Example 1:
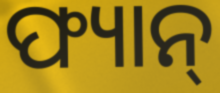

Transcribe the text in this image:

ଫ୍ୟାନ୍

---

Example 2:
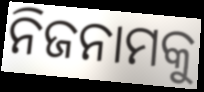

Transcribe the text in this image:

ନିଜନାମକୁ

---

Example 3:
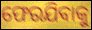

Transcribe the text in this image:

ଫେରଯିବାକୁ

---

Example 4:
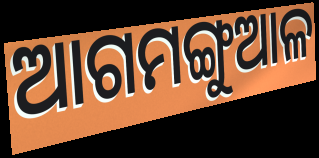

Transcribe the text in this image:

ଆଗମଙ୍ଗୁଆଳ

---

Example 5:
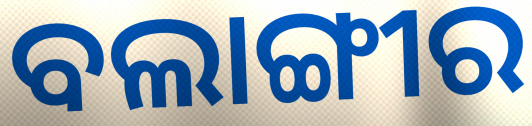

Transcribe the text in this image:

ବଲାଙ୍ଗୀର